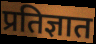
प्रतिज्ञात